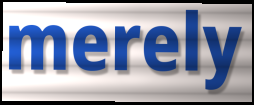
merely